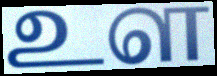
உள